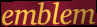
emblem